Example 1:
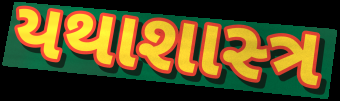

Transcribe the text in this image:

યથાશાસ્‍ત્ર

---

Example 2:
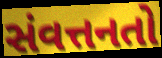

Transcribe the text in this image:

સંવત્તનતો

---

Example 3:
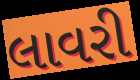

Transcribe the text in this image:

લાવરી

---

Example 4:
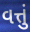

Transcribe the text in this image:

વત્તું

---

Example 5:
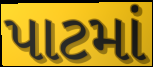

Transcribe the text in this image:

પાટમાં